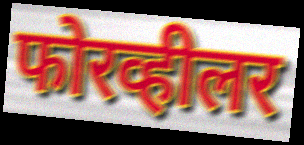
फोरव्हीलर